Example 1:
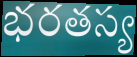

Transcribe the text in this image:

భరతస్య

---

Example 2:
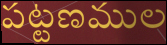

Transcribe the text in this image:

పట్టణముల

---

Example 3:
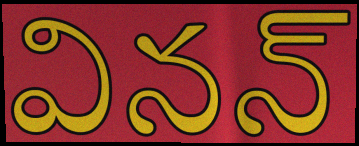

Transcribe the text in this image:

వినన్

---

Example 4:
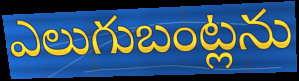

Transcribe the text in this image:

ఎలుగుబంట్లను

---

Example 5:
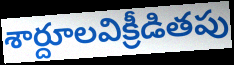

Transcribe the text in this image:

శార్దూలవిక్రీడితపు